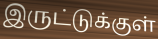
இருட்டுக்குள்